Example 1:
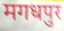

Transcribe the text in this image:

मगधपुर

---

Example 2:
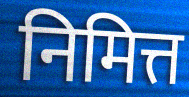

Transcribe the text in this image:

निमित्त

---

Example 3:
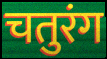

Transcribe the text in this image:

चतुरंग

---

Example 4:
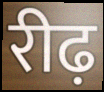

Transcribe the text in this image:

रीढ़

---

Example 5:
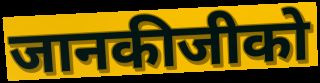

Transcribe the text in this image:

जानकीजीको